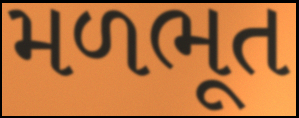
મળભૂત